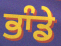
ਭਾੰਡੇ